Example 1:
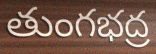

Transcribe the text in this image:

తుంగభద్ర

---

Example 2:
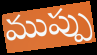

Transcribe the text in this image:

ముప్పు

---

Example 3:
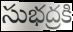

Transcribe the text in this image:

సుభద్రకి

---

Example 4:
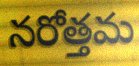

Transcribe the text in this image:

నరోత్తమ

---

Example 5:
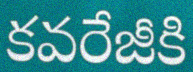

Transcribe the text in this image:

కవరేజీకి